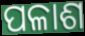
ପଳାଶ